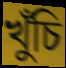
খুঁচি